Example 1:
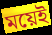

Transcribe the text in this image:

ময়েই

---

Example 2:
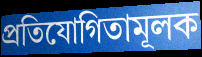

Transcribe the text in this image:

প্ৰতিযোগিতামূলক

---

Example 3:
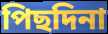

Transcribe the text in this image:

পিছদিনা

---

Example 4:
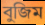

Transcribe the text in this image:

বুজিম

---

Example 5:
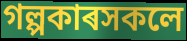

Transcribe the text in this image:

গল্পকাৰসকলে